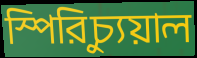
স্পিরিচ্যুয়াল